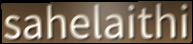
sahelaithi